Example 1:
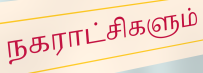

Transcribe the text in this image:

நகராட்சிகளும்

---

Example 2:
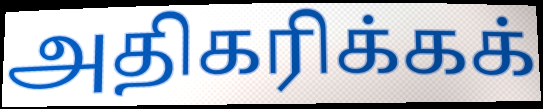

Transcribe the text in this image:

அதிகரிக்கக்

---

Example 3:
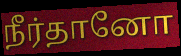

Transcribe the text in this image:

நீர்தானோ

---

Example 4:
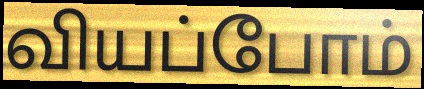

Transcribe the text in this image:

வியப்போம்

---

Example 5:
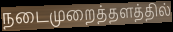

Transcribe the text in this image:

நடைமுறைத்தளத்தில்